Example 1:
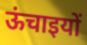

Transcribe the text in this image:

ऊंचाइयों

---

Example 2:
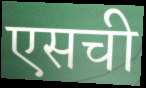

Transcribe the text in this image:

एसची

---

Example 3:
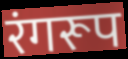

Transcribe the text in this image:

रंगरूप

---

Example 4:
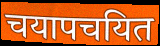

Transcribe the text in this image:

चयापचयित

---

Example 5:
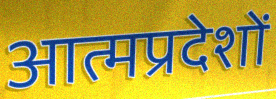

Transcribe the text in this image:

आत्मप्रदेशों